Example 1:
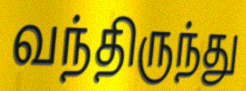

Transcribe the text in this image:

வந்திருந்து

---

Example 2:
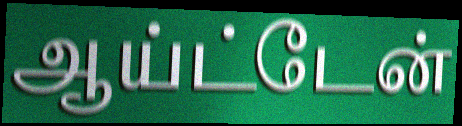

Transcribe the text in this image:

ஆய்ட்டேன்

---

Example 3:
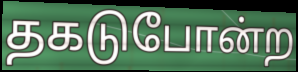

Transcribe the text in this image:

தகடுபோன்ற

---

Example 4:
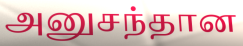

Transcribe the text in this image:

அனுசந்தான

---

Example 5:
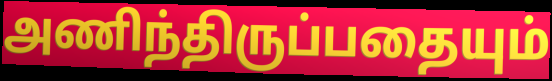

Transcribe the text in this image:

அணிந்திருப்பதையும்